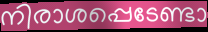
നിരാശപ്പെടേണ്ടാ